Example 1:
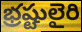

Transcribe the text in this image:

భ్రష్టులైరి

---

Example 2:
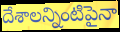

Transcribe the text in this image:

దేశాలన్నింటిపైనా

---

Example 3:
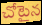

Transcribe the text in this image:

చోటైన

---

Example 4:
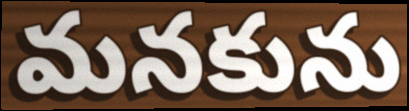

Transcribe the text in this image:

మనకును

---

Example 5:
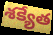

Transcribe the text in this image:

శక్యేత